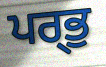
ਪਰ੍ਭੁ